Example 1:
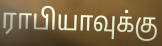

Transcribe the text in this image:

ராபியாவுக்கு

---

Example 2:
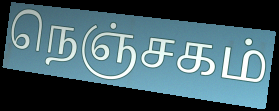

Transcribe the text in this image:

நெஞ்சகம்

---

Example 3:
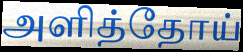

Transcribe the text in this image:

அளித்தோய்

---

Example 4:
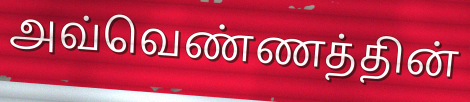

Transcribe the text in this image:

அவ்வெண்ணத்தின்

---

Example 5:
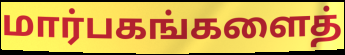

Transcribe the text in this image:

மார்பகங்களைத்